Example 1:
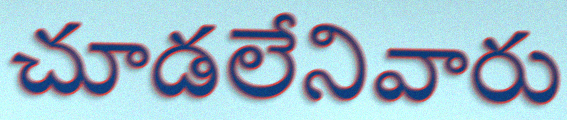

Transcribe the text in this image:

చూడలేనివారు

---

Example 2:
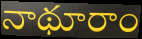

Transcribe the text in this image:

నాథూరాం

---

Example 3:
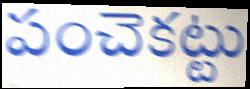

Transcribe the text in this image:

పంచెకట్టు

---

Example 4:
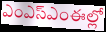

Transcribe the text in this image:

ఎంఎస్ఎంఈల్లో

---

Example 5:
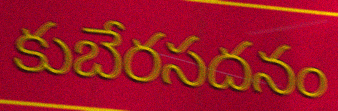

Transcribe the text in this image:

కుబేరసదనం